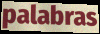
palabras